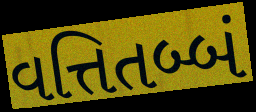
વત્તિતબ્બં